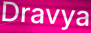
Dravya